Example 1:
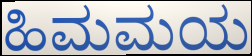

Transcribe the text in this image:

ಹಿಮಮಯ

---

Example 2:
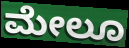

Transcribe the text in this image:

ಮೇಲೂ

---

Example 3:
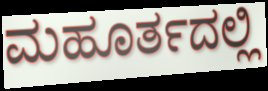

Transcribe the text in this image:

ಮಹೂರ್ತದಲ್ಲಿ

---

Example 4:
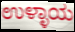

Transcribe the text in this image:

ಉಳ್ಳಾಯ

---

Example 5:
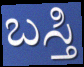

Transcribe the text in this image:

ಬಸ್ತಿ